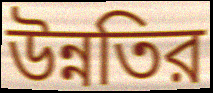
উন্নতির